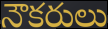
నౌకరులు